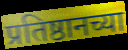
प्रतिष्ठानच्या